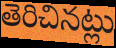
తెరిచినట్లు